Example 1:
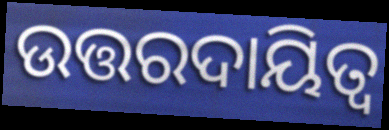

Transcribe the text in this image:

ଉତ୍ତରଦାୟିତ୍ଵ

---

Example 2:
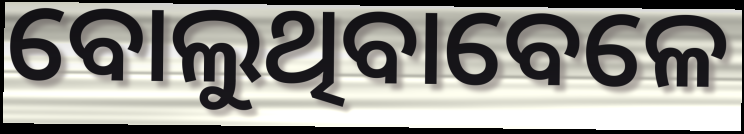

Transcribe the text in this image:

ବୋଲୁଥିବାବେଳେ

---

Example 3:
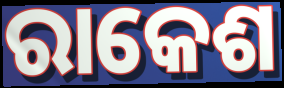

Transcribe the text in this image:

ରାକେଶ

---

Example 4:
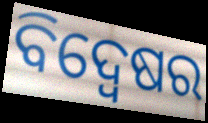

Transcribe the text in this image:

ବିଦ୍ବେଷର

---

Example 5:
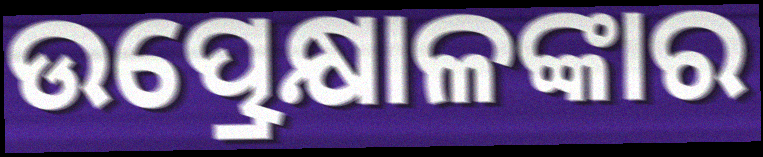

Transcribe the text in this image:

ଉତ୍ପ୍ରେକ୍ଷାଳଙ୍କାର